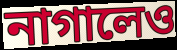
নাগালেও